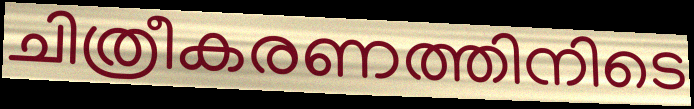
ചിത്രീകരണത്തിനിടെ